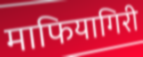
माफियागिरी